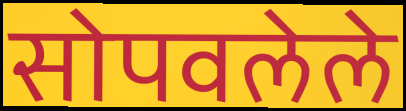
सोपवलेले